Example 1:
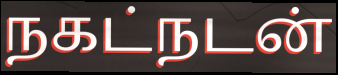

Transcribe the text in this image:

நகட்நடன்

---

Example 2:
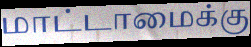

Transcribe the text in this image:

மாட்டாமைக்கு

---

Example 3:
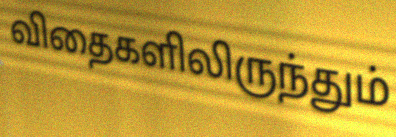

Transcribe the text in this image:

விதைகளிலிருந்தும்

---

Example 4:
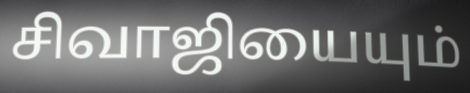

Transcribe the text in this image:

சிவாஜியையும்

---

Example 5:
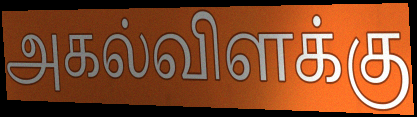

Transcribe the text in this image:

அகல்விளக்கு